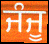
ਜੰਜੂ